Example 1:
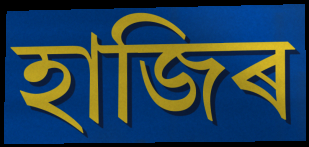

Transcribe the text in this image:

হাজিৰ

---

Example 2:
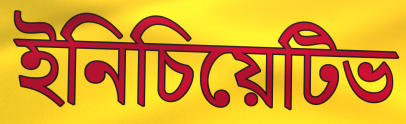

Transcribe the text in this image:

ইনিচিয়েটিভ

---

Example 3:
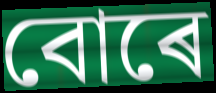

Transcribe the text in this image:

বোৰে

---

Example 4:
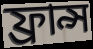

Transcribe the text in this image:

ফ্ৰান্স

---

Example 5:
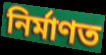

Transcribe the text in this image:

নিৰ্মাণত